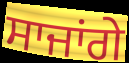
ਸਾਜਾਂਗੇ